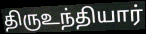
திருஉந்தியார்